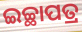
ଇଚ୍ଛାପତ୍ର